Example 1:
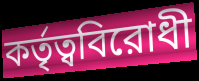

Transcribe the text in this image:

কর্তৃত্ববিরোধী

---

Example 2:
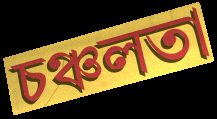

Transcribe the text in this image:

চঞ্চলতা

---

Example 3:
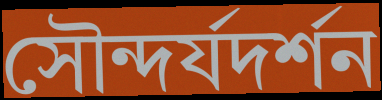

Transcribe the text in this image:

সৌন্দর্যদর্শন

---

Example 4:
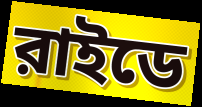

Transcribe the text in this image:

রাইডে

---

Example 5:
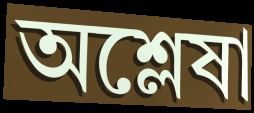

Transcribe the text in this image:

অশ্লেষা